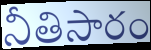
నీతిసారం